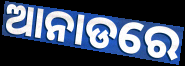
ଆନାଡରେ